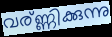
വര്ണ്ണിക്കുന്നു